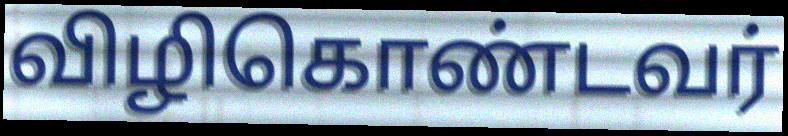
விழிகொண்டவர்